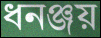
ধনঞ্জয়